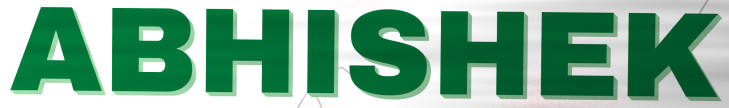
ABHISHEK